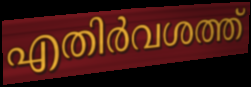
എതിർവശത്ത്